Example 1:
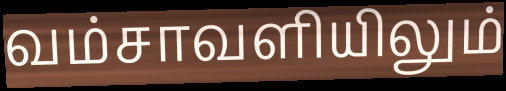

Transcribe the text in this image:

வம்சாவளியிலும்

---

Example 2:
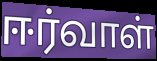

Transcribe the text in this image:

ஈர்வாள்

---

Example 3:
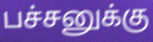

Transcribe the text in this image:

பச்சனுக்கு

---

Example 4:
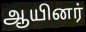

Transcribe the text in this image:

ஆயினர்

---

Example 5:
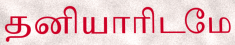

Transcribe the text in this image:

தனியாரிடமே